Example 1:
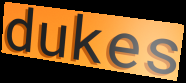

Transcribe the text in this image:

dukes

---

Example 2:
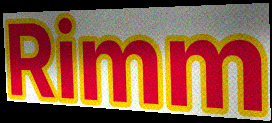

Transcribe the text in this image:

Rimm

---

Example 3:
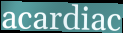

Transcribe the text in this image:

acardiac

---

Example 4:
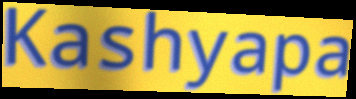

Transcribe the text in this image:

Kashyapa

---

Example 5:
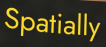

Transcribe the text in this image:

Spatially